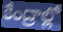
కేంద్రాల్లో